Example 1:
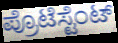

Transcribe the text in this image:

ಪ್ರೊಟೆಸ್ಟೆಂಟ್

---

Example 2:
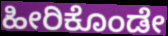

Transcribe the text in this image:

ಹೀರಿಕೊಂಡೇ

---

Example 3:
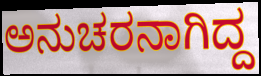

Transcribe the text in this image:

ಅನುಚರನಾಗಿದ್ದ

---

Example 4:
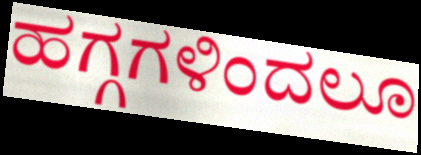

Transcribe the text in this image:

ಹಗ್ಗಗಳಿಂದಲೂ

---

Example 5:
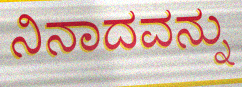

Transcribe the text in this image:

ನಿನಾದವನ್ನು